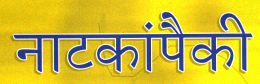
नाटकांपैकी